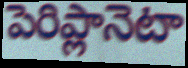
పెరిప్లానెటా